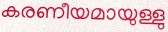
കരണീയമായുള്ളു